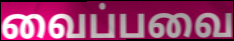
வைப்பவை